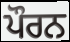
ਪੌਰਨ